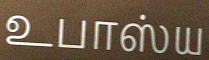
உபாஸ்ய